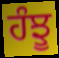
ਹੰਝੂ